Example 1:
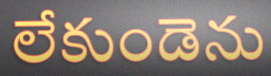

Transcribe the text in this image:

లేకుండెను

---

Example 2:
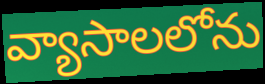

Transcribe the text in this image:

వ్యాసాలలోను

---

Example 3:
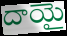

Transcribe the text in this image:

దాయై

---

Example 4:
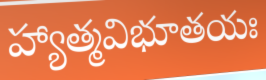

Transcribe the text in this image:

హ్యాత్మవిభూతయః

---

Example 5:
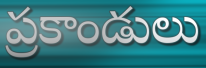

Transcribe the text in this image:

ప్రకాండులు